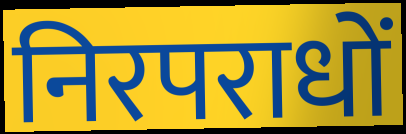
निरपराधों